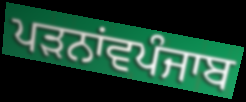
ਪੜਨਾਂਵਪੰਜਾਬ